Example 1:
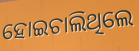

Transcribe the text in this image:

ହୋଇଚାଲିଥିଲେ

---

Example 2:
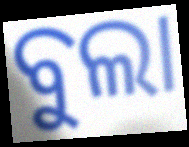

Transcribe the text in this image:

ବୁଲା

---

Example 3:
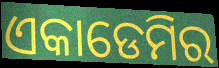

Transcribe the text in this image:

ଏକାଡେମିର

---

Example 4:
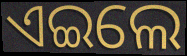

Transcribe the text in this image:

ଏଇଲେ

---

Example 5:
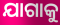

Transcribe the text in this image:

ଯାଗାକୁ